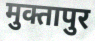
मुक्तापुर